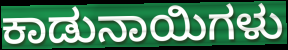
ಕಾಡುನಾಯಿಗಳು